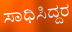
ಸಾಧಿಸಿದ್ದರ